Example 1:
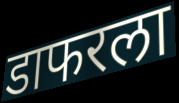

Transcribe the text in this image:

डाफरला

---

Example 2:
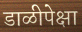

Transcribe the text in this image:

डाळीपेक्षा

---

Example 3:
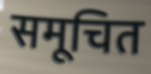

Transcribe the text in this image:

समूचित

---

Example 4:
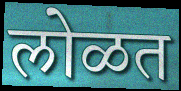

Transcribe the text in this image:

लोळत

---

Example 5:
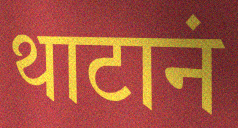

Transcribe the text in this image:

थाटानं